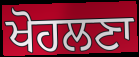
ਖੋਹਲਣਾ